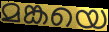
മങ്കയെ